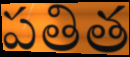
పతిత